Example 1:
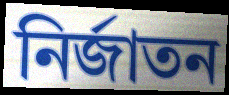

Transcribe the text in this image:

নিৰ্জাতন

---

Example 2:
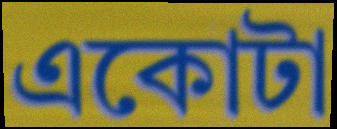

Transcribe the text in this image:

একোটা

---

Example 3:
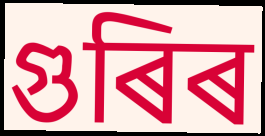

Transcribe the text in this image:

গুৰিৰ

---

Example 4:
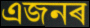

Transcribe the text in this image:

এজনৰ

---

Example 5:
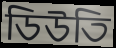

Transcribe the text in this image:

ডিউতি